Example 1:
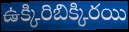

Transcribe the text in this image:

ఉక్కిరిబిక్కిరయి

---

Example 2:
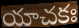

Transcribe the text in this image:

యాచకః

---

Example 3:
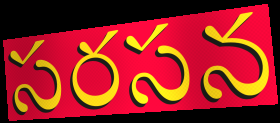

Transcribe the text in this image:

సరసన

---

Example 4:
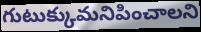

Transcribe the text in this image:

గుటుక్కుమనిపించాలని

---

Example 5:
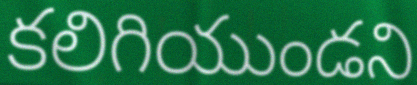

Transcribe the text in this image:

కలిగియుండని